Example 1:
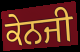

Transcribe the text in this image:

ਕੇਨਜੀ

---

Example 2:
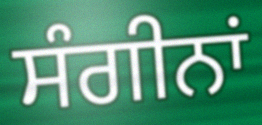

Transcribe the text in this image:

ਸੰਗੀਨਾਂ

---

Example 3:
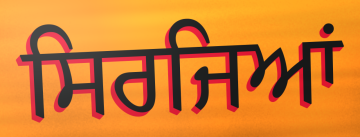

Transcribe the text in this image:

ਸਿਰਜਿਆਂ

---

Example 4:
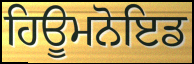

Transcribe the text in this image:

ਹਿਊਮਨੋਇਡ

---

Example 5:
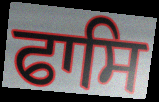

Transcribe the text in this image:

ਫਾਸਿ